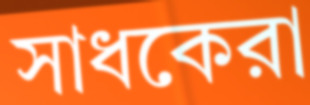
সাধকেরা